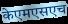
केएमएसएच